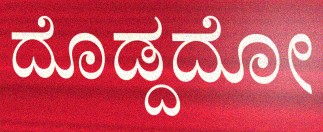
ದೊಡ್ದದೋ